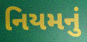
નિયમનું